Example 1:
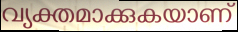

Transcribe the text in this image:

വ്യക്തമാക്കുകയാണ്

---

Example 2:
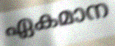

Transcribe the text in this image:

ഏകമാന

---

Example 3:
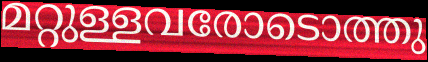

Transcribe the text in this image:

മറ്റുള്ളവരോടൊത്തു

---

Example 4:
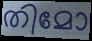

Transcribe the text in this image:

തിമോ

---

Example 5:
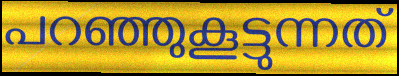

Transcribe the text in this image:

പറഞ്ഞുകൂട്ടുന്നത്